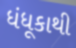
ધંધૂકાથી